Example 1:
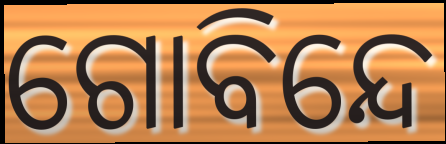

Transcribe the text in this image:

ଗୋବିନ୍ଦେ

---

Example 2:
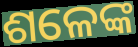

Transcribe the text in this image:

ଶଳେଙ୍କ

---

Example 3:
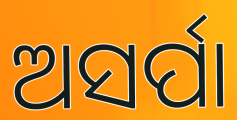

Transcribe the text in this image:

ଅସର୍ପା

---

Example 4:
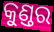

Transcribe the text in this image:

କୁଣ୍ଡର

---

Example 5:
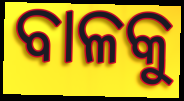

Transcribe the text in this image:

ବାଳକୁ